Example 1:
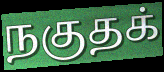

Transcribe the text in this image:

நகுதக்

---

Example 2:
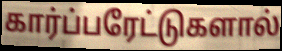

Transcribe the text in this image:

கார்ப்பரேட்டுகளால்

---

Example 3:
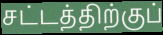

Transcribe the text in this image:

சட்டத்திற்குப்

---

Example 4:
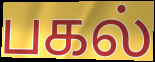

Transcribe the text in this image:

பகல்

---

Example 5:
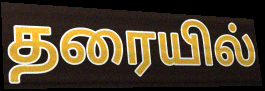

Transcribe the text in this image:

தரையில்